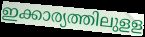
ഇക്കാര്യത്തിലുളള